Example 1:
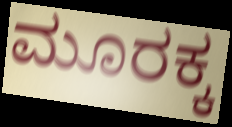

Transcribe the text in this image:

ಮೂರಕ್ಕ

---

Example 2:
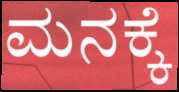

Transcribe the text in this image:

ಮನಕ್ಕೆ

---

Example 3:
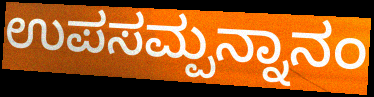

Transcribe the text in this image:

ಉಪಸಮ್ಪನ್ನಾನಂ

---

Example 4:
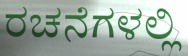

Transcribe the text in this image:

ರಚನೆಗಳಲ್ಲಿ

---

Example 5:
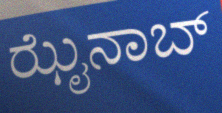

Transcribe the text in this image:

ಝೈನಾಬ್